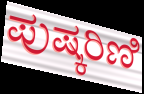
ಪುಷ್ಕರಿಣಿ